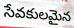
సేవకులమైన